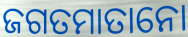
ଜଗତମାତାନୋ